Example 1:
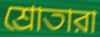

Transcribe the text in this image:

শ্রোতারা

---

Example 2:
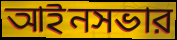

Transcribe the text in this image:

আইনসভার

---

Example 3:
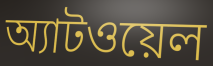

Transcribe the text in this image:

অ্যাটওয়েল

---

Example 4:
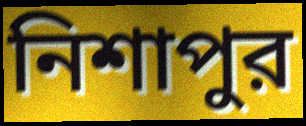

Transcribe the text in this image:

নিশাপুর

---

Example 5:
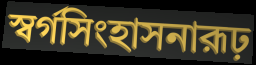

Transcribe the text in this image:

স্বর্গসিংহাসনারূঢ়